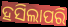
ହସିଲାପରି